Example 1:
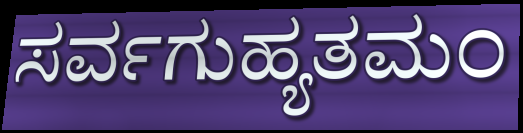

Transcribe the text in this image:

ಸರ್ವಗುಹ್ಯತಮಂ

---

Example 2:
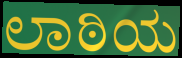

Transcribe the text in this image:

ಲಾಠಿಯ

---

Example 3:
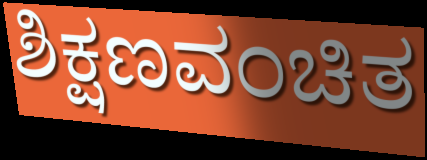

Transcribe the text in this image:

ಶಿಕ್ಷಣವಂಚಿತ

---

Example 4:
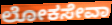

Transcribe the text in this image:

ಲೋಕಸೇವಾ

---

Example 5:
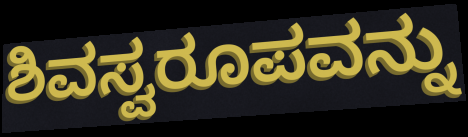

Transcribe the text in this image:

ಶಿವಸ್ವರೂಪವನ್ನು